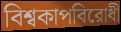
বিশ্বকাপবিরোধী